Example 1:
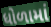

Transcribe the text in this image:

ધોળામાં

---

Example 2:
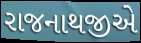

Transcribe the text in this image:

રાજનાથજીએ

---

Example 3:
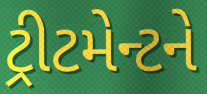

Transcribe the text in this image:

ટ્રીટમેન્ટને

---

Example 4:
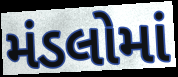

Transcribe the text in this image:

મંડલોમાં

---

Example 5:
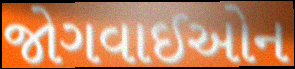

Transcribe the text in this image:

જોગવાઈઓન